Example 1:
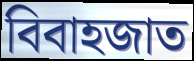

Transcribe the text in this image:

বিবাহজাত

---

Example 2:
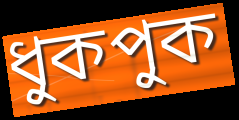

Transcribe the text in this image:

ধুকপুক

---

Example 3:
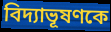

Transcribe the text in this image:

বিদ্যাভূষণকে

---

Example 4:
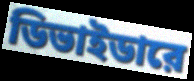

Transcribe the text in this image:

ডিভাইডারে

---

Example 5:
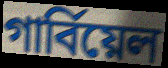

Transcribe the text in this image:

গার্বিয়েল